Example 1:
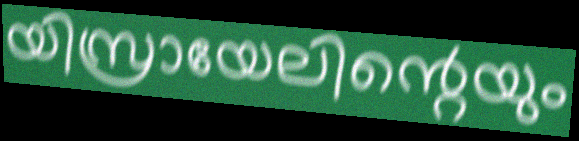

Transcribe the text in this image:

യിസ്രായേലിന്റെയും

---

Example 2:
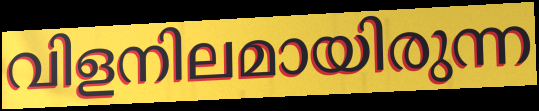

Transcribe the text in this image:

വിളനിലമായിരുന്ന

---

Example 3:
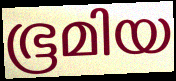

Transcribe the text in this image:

ഭൂമിയ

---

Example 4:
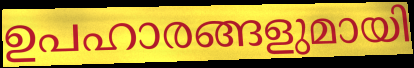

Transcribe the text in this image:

ഉപഹാരങ്ങളുമായി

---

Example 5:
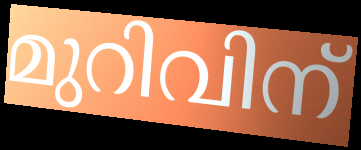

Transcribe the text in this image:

മുറിവിന്